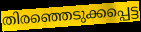
തിരഞ്ഞെടുക്കപ്പെട്ട